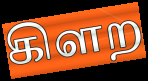
கிளற